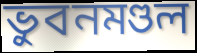
ভুবনমণ্ডল